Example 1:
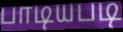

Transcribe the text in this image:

பாடியபடி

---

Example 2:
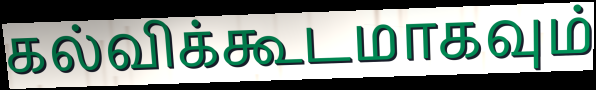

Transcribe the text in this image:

கல்விக்கூடமாகவும்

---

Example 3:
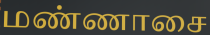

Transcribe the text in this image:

மண்ணாசை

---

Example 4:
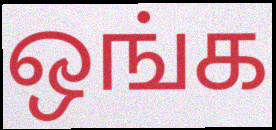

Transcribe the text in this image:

ஒங்க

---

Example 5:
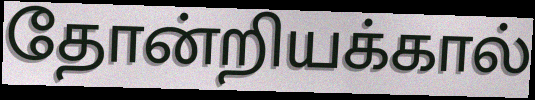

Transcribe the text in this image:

தோன்றியக்கால்